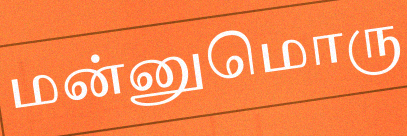
மன்னுமொரு